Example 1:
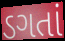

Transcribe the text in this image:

ડગતાં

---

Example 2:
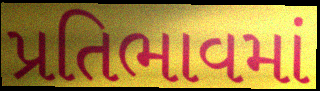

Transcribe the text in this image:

પ્રતિભાવમાં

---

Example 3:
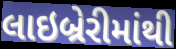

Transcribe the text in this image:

લાઇબ્રેરીમાંથી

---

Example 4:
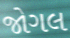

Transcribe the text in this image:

જોગલ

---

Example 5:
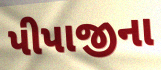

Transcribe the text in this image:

પીપાજીના